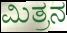
ಮಿತ್ರನ